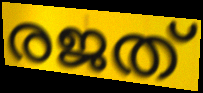
രജത്